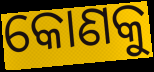
କୋଣକୁ